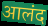
आलंद